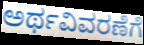
ಅರ್ಥವಿವರಣೆಗೆ